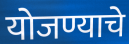
योजण्याचे